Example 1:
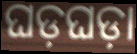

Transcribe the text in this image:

ଘଡ଼ଘଡ଼ା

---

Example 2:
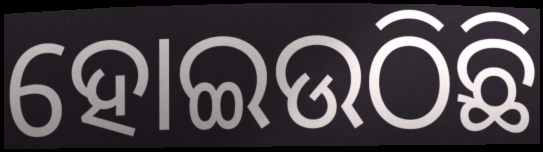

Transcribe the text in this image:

ହୋଇଉଠିଛି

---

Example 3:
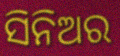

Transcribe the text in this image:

ସିନିଅର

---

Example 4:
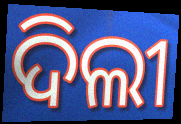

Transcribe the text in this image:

ଦିଲୀ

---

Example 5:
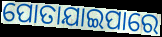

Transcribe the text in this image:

ପୋତାଯାଇପାରେ